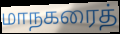
மாநகரைத்